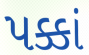
પક્કાં